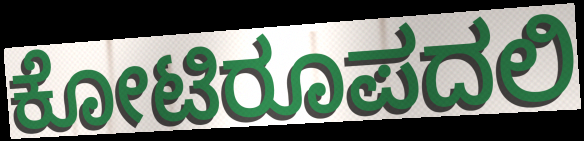
ಕೋಟಿರೂಪದಲಿ